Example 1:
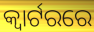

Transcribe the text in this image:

କ୍ଵାର୍ଟରରେ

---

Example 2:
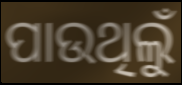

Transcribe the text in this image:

ପାଉଥିଲୁଁ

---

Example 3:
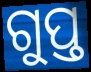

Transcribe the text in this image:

ଗୁପ୍ତ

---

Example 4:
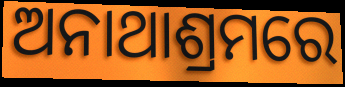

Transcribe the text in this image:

ଅନାଥାଶ୍ରମରେ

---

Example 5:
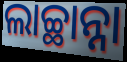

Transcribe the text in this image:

ଲାଚ୍ଛାନ୍ନା